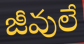
జీవులే